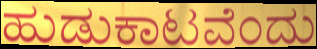
ಹುಡುಕಾಟವೆಂದು